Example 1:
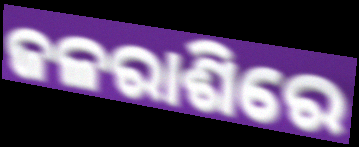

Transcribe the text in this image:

ଜଳରାଶିରେ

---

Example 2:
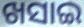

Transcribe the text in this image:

ଖସାଇ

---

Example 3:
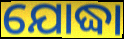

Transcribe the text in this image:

ଯୋଦ୍ଧା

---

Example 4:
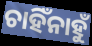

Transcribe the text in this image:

ଚାହିଁନାହୁଁ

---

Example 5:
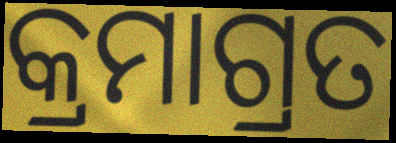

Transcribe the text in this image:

କ୍ରମାଗ୍ରତ